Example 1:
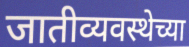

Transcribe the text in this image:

जातीव्यवस्थेच्या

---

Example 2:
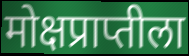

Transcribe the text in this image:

मोक्षप्राप्तीला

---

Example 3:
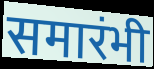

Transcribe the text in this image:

समारंभी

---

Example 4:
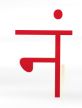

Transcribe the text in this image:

नं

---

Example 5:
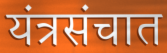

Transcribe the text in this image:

यंत्रसंचात